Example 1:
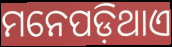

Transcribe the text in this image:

ମନେପଡ଼ିଥାଏ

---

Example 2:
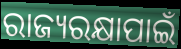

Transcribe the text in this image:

ରାଜ୍ୟରକ୍ଷାପାଇଁ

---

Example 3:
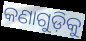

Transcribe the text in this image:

କଣାଗୁଡ଼ିକୁ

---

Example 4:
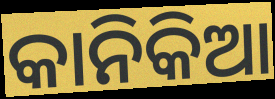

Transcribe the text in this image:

କାନିକିଆ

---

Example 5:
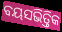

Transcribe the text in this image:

ବୟସଭିତ୍ତିକ